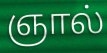
ஞால்